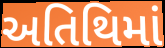
અતિથિમાં